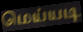
மெய்யடி